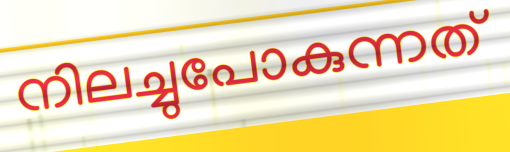
നിലച്ചുപോകുന്നത്